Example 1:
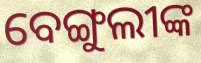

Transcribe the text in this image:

ବେଙ୍ଗୁଲୀଙ୍କ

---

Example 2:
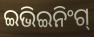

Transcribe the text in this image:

ଇଭିଇନିଂଗ୍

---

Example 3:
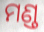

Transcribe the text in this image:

ମଣ୍ଡ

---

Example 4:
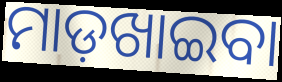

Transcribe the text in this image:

ମାଡ଼ଖାଇବା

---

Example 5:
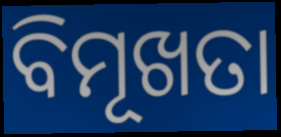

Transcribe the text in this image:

ବିମୂଖତା